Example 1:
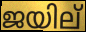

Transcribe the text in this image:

ജയില്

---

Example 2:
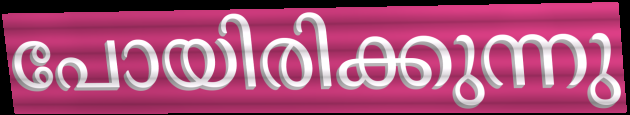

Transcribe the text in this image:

പോയിരിക്കുന്നു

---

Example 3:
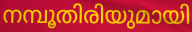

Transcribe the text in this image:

നമ്പൂതിരിയുമായി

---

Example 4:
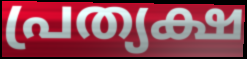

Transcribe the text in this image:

പ്രത്യക്ഷ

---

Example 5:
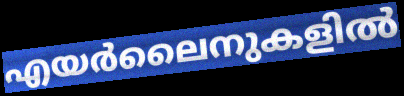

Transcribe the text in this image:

എയർലൈനുകളിൽ